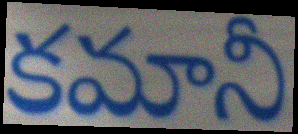
కమానీ